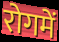
रोगमें